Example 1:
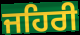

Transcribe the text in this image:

ਜਹਿਰੀ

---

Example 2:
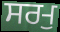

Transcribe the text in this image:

ਸਰ੍ਮੁ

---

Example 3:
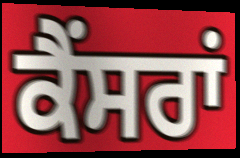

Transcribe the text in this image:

ਕੈਂਸਰਾਂ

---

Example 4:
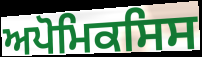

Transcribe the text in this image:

ਅਪੋਮਿਕਸਿਸ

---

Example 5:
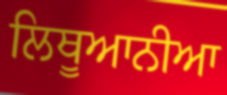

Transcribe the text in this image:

ਲਿਥੂਆਨੀਆ